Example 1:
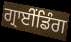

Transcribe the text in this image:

ਗ੍ਰਾਈਂਡਿੰਗ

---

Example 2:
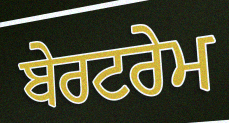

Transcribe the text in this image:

ਬੇਰਟਰੇਮ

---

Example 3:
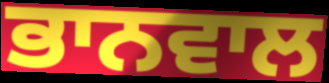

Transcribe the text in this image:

ਭਾਨਵਾਲ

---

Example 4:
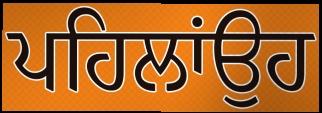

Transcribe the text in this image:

ਪਹਿਲਾਂਉਹ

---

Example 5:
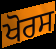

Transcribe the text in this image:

ਖੋਰਸ